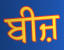
ਬੀਜ਼